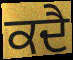
ਕਦੈ